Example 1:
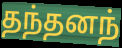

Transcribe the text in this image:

தந்தனந்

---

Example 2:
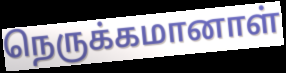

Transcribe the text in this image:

நெருக்கமானாள்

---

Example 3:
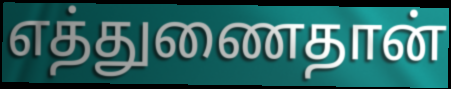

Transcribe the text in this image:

எத்துணைதான்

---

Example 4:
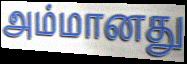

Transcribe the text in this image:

அம்மானது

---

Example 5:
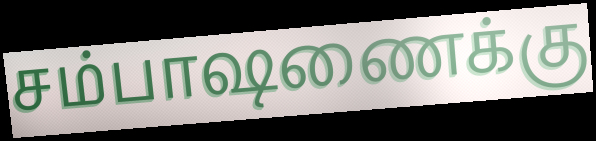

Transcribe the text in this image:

சம்பாஷணைக்கு